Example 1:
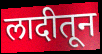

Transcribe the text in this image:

लादीतून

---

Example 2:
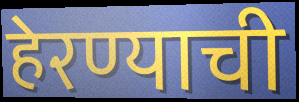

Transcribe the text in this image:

हेरण्याची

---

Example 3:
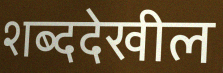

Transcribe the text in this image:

शब्ददेखील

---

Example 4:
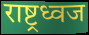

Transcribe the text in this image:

राष्ट्रध्वज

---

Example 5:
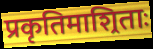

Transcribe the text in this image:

प्रकृतिमाश्रिताः